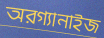
অরগ্যানাইজ